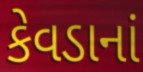
કેવડાનાં